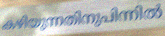
കഴിയുന്നതിനുപിന്നിൽ